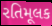
રતિમૂલક